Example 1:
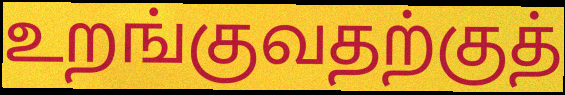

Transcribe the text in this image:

உறங்குவதற்குத்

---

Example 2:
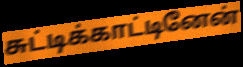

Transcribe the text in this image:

சுட்டிக்காட்டினேன்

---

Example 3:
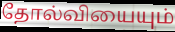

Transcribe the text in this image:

தோல்வியையும்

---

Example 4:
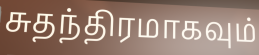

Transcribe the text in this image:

சுதந்திரமாகவும்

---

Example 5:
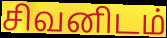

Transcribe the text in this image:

சிவனிடம்